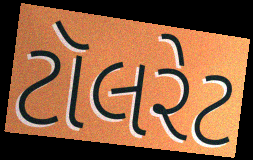
ટૉલરેટ